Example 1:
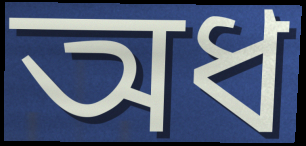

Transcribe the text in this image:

অধ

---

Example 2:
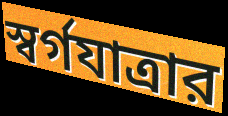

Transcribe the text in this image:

স্বর্গযাত্রার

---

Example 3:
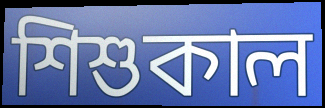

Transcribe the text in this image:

শিশুকাল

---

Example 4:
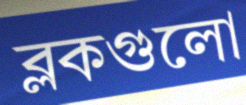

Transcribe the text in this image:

ব্লকগুলো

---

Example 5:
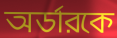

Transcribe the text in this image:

অর্ডারকে